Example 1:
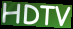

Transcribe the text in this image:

HDTV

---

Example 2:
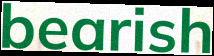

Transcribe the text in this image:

bearish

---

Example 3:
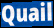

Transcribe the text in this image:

Quail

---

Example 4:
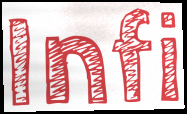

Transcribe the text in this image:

Infi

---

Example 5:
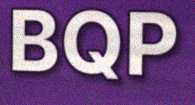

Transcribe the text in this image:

BQP